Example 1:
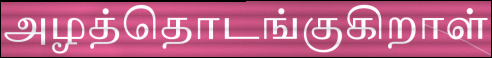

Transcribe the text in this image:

அழத்தொடங்குகிறாள்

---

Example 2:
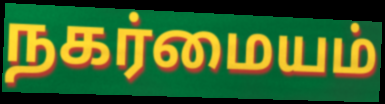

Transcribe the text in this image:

நகர்மையம்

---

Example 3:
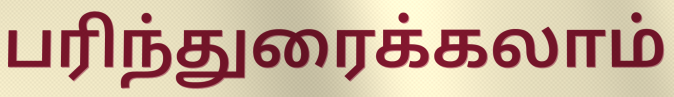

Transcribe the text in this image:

பரிந்துரைக்கலாம்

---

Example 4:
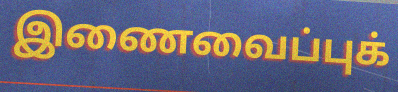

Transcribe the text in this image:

இணைவைப்புக்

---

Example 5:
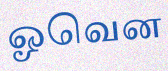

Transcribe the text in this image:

ஓவென